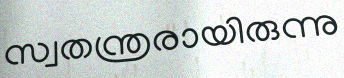
സ്വതന്ത്രരായിരുന്നു